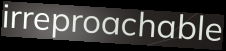
irreproachable